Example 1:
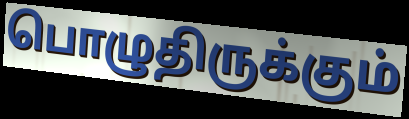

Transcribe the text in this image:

பொழுதிருக்கும்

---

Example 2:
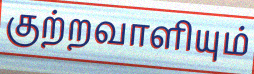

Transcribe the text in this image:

குற்றவாளியும்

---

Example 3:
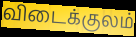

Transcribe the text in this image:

விடைக்குலம்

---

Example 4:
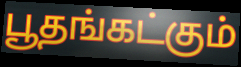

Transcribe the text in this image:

பூதங்கட்கும்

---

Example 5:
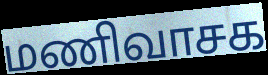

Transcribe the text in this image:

மணிவாசக